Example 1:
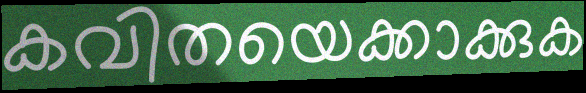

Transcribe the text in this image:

കവിതയെക്കാക്കുക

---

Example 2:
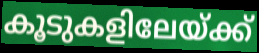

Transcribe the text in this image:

കൂടുകളിലേയ്ക്ക്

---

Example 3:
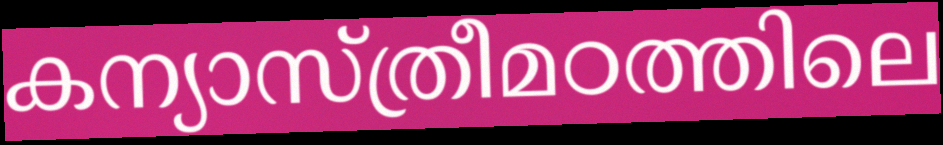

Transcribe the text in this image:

കന്യാസ്ത്രീമഠത്തിലെ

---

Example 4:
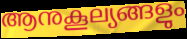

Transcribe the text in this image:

ആനുകൂല്യങ്ങളും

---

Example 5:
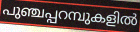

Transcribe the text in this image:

പുഞ്ചപ്പറമ്പുകളിൽ